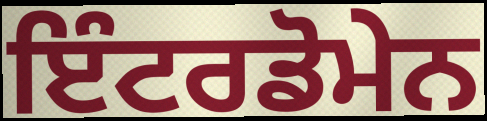
ਇੰਟਰਡੋਮੇਨ